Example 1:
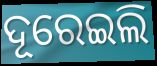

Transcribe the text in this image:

ଦୂରେଇଲି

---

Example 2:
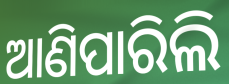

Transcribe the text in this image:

ଆଣିପାରିଲି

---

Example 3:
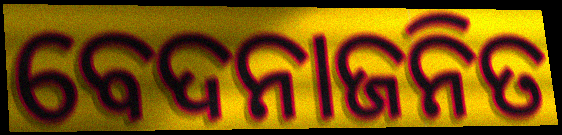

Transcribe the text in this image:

ବେଦନାଜନିତ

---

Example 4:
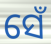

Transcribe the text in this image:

ସେଁ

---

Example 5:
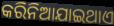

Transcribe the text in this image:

କରିନିଆଯାଇଥାଏ